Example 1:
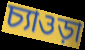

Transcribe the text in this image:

চ্যাওড়া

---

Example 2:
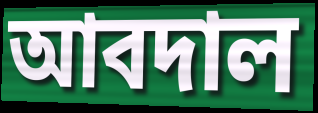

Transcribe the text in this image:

আবদাল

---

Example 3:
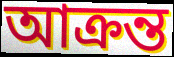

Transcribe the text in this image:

আক্রন্ত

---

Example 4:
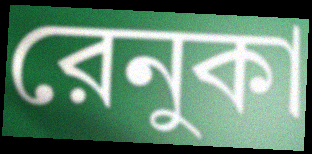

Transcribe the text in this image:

রেনুকা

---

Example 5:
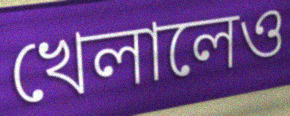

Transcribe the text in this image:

খেলালেও